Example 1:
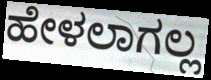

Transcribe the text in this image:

ಹೇಳಲಾಗಲ್ಲ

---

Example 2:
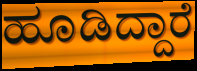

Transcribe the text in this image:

ಹೂಡಿದ್ದಾರೆ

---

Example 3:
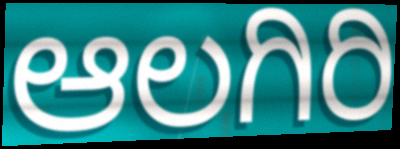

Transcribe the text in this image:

ಆಲಗಿರಿ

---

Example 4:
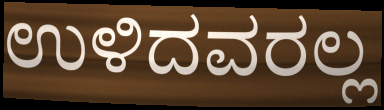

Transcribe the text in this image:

ಉಳಿದವರಲ್ಲ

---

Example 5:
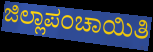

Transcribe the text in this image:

ಜಿಲ್ಲಾಪಂಚಾಯಿತಿ